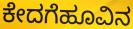
ಕೇದಗೆಹೂವಿನ